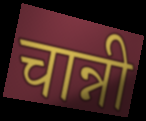
चान्नी